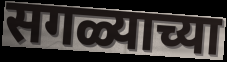
सगळ्याच्या